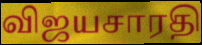
விஜயசாரதி